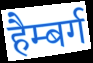
हैम्बर्ग